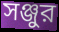
সঞ্জুর